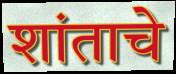
शांताचे